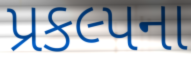
પ્રકલ્પના